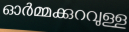
ഓർമ്മക്കുറവുള്ള